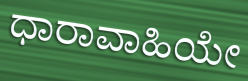
ಧಾರಾವಾಹಿಯೇ